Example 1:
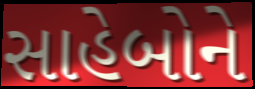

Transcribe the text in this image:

સાહેબોને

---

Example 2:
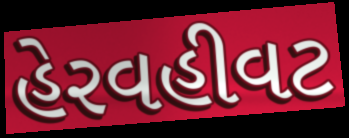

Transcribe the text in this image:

હેરવહીવટ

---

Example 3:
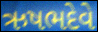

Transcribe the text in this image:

ઋષભદેવે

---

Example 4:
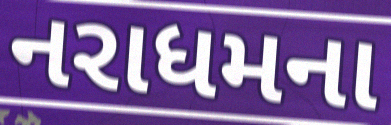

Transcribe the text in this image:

નરાધમના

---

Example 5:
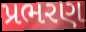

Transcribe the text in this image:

પ્રભરણ